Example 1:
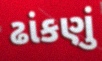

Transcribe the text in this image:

ઢાંકણું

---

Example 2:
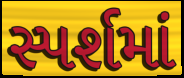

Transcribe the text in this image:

સ્પર્શમાં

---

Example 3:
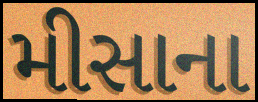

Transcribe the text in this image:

મીસાના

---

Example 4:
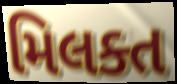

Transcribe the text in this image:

મિલક્ત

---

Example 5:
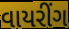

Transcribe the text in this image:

વાયરીંગ